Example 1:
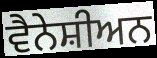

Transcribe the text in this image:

ਵੈਨੇਸ਼ੀਅਨ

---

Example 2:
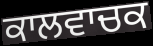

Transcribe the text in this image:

ਕਾਲਵਾਚਕ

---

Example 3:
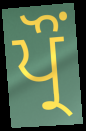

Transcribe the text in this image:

ਪ੍ਰੌਂ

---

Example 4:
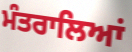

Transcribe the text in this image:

ਮੰਤਰਾਲਿਆਂ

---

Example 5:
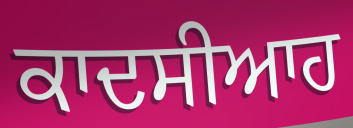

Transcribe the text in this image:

ਕਾਦਸੀਆਹ